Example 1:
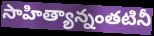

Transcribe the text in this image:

సాహిత్యాన్నంతటినీ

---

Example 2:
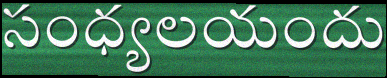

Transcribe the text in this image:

సంధ్యలయందు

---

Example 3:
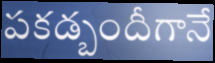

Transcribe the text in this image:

పకడ్బందీగానే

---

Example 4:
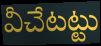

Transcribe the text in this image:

వీచేటట్టు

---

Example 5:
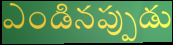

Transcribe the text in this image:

ఎండినప్పుడు